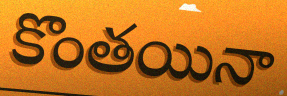
కొంతయినా